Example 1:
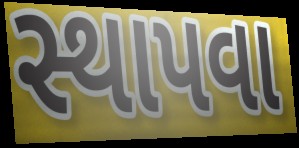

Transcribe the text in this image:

સ્થાપવા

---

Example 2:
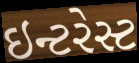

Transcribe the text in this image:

ઇન્ટરેસ્ટ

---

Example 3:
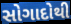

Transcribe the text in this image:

સોગાદોથી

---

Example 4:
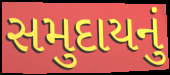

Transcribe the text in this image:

સમુદાયનું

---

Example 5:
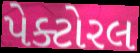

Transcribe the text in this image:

પેક્ટોરલ